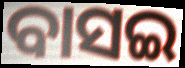
ବାସଇ